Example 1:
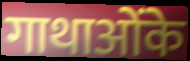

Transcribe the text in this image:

गाथाओंके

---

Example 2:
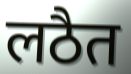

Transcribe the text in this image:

लठैत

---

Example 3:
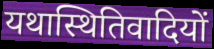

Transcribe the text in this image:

यथास्थितिवादियों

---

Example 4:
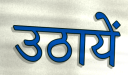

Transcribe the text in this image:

उठायें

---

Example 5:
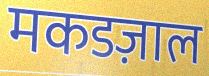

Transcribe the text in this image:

मकडज़ाल